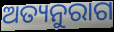
ଅତ୍ୟନୁରାଗ